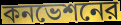
কনভেশনের